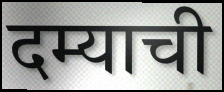
दम्याची